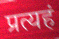
प्रत्यहं